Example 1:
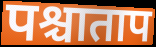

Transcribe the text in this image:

पश्चाताप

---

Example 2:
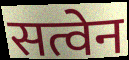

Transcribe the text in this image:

सत्वेन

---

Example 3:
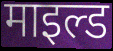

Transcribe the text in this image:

माइल्ड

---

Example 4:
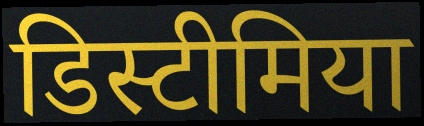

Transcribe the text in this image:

डिस्टीमिया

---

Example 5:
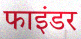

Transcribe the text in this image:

फाइंडर